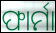
ଫାର୍ମା